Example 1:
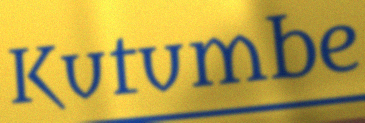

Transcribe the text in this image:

Kutumbe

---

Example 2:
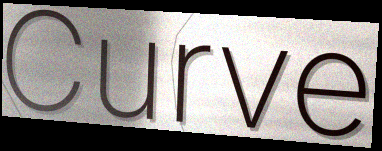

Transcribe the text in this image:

Curve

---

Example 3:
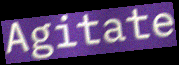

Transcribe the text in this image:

Agitate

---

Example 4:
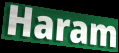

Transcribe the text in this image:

Haram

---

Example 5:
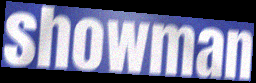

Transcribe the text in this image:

showman